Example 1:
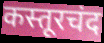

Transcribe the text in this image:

कस्तूरचंद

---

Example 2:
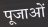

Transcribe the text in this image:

पूजाओं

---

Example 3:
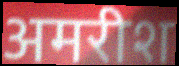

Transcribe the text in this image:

अमरीश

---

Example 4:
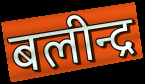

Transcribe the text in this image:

बलीन्द्र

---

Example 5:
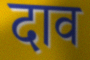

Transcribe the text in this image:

दाव